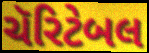
ચૅરિટેબલ